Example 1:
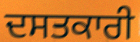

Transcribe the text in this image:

ਦਸਤਕਾਰੀ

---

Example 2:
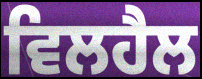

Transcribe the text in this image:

ਵਿਲਹੈਲ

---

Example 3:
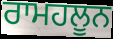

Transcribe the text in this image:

ਰਾਮਹਲੂਨ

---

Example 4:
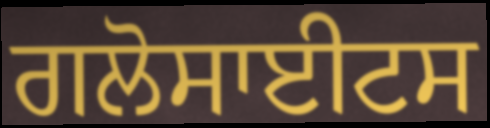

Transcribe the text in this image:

ਗਲੋਸਾਈਟਸ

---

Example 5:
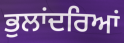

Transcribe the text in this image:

ਭੁਲਾਂਦਰਿਆਂ